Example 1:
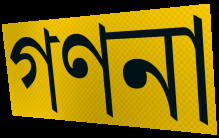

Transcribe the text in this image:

গণনা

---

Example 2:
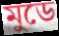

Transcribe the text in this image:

মুডে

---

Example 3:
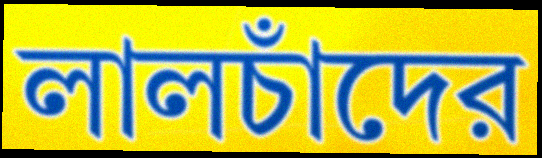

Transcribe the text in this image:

লালচাঁদের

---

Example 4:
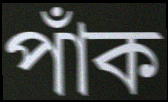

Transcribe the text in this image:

পাঁক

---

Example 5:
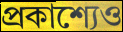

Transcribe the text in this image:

প্রকাশ্যেও